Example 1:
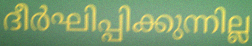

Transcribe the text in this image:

ദീർഘിപ്പിക്കുന്നില്ല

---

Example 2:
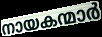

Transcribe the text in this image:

നായകന്മാർ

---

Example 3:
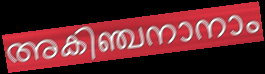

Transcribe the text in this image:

അകിഞ്ചനാനാം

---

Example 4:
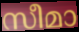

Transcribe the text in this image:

സീമാ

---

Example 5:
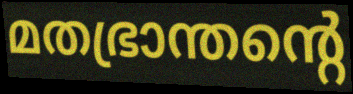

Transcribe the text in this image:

മതഭ്രാന്തന്റെ